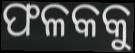
ଫଳକକୁ